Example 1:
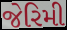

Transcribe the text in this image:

જેરિમી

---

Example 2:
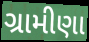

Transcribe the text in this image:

ગ્રામીણા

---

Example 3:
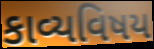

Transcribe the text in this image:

કાવ્યવિષય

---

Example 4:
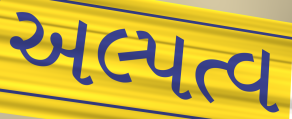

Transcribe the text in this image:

અલ્પત્વ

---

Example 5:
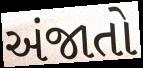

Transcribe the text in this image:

અંજાતો